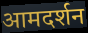
आमदर्शन